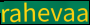
rahevaa